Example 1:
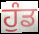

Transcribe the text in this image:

ਹੁੰਡ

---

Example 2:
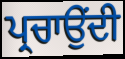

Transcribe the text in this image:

ਪ੍ਰਚਾਉਂਦੀ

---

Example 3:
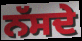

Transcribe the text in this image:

ਨੱਸਦੇ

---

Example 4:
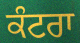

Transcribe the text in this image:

ਕੰਟਰਾ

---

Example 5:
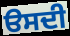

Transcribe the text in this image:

ੳਸਦੀ